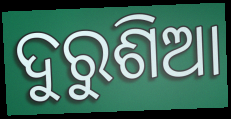
ଦୁରୁଶିଆ